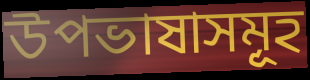
উপভাষাসমূহ